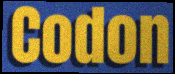
Codon